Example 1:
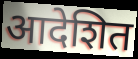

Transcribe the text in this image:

आदेशित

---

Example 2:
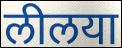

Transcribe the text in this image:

लीलया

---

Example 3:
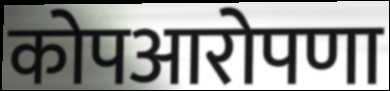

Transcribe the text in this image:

कोपआरोपणा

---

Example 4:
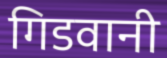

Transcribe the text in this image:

गिडवानी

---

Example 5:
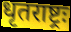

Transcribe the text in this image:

धृतराष्ट्रः